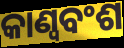
କାଣ୍ୱବଂଶ